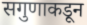
सगुणाकडून